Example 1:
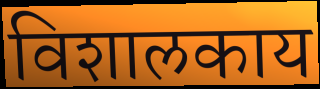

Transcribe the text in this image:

विशालकाय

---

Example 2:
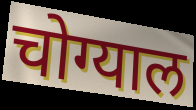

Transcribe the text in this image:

चोग्याल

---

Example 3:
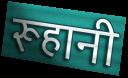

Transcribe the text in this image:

रूहानी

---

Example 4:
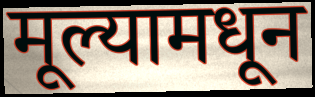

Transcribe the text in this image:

मूल्यामधून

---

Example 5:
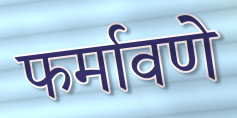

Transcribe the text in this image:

फर्मावणे